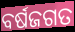
ବର୍ଷଜଗତ